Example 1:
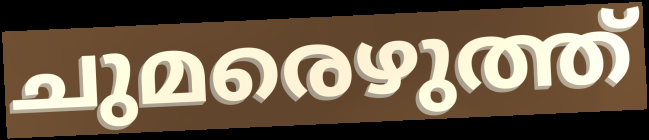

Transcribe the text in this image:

ചുമരെഴുത്ത്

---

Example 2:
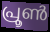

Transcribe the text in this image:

പ്രൂൺ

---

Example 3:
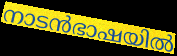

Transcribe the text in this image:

നാടൻഭാഷയിൽ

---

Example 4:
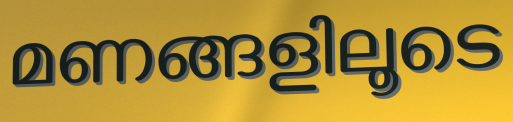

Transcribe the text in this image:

മണങ്ങളിലൂടെ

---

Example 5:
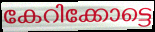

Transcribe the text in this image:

കേറിക്കോട്ടെ